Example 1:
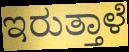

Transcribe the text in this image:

ಇರುತ್ತಾಳೆ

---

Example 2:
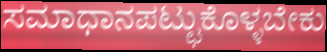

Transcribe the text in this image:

ಸಮಾಧಾನಪಟ್ಟುಕೊಳ್ಳಬೇಕು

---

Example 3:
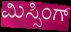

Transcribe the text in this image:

ಮಿಸ್ಸಿಂಗ್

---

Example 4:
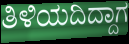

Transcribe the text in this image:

ತಿಳಿಯದಿದ್ದಾಗ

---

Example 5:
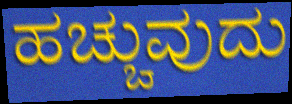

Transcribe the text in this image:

ಹಚ್ಚುವುದು